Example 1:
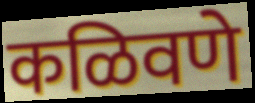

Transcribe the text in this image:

कळिवणे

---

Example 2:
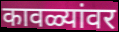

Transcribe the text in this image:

कावळ्यांवर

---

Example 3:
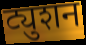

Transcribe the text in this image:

ट्युशन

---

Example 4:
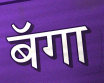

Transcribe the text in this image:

बॅगा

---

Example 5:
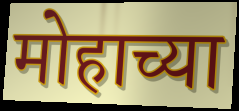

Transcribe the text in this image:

मोहाच्या